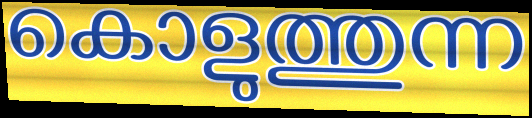
കൊളുത്തുന്ന